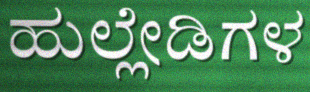
ಹುಲ್ಲೇಡಿಗಳ